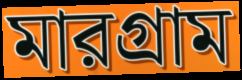
মারগ্রাম